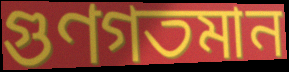
গুণগতমান